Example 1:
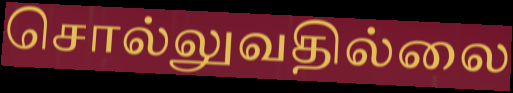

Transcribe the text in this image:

சொல்லுவதில்லை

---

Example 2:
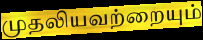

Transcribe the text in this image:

முதலியவற்றையும்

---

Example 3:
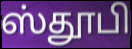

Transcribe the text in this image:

ஸ்தூபி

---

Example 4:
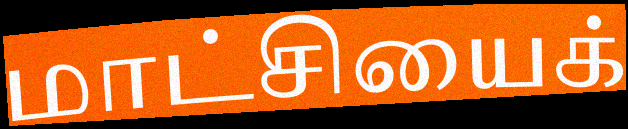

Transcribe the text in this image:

மாட்சியைக்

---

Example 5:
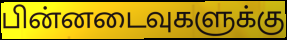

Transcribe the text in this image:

பின்னடைவுகளுக்கு